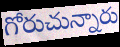
గోరుచున్నారు